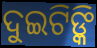
ଦୁଇଟିଙ୍କି